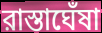
রাস্তাঘেঁষা